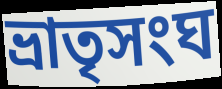
ভ্রাতৃসংঘ